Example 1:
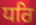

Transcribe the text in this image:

ਧਰਿ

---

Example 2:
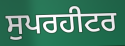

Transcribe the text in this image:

ਸੁਪਰਹੀਟਰ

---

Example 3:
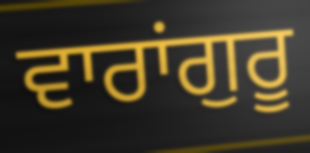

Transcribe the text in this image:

ਵਾਰਾਂਗੁਰੂ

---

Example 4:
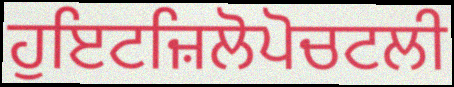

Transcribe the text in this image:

ਹੁਇਟਜ਼ਿਲੋਪੋਚਟਲੀ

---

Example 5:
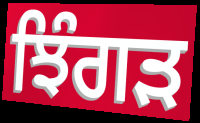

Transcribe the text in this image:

ਝਿੰਗੜ